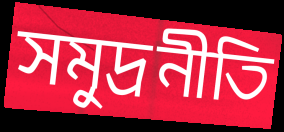
সমুদ্রনীতি